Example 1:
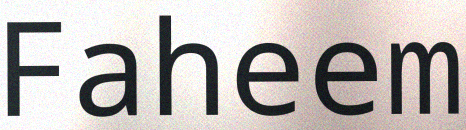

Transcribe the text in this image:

Faheem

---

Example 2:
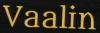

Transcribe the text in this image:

Vaalin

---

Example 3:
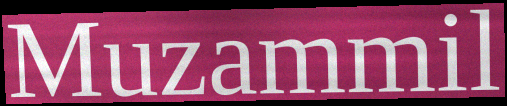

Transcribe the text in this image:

Muzammil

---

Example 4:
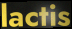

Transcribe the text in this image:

lactis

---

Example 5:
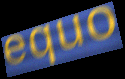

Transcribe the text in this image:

equo